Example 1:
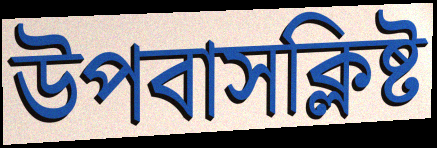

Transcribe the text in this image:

উপবাসক্লিষ্ট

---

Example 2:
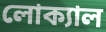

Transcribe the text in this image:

লোক্যাল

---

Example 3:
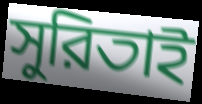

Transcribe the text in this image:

সুরিতাই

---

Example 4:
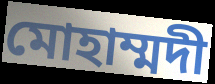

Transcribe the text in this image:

মোহাম্মদী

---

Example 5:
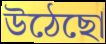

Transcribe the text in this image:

উঠেছো